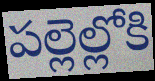
పల్లెల్లోకి